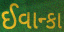
ઈવાન્કા